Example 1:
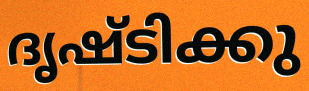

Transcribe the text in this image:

ദൃഷ്ടിക്കു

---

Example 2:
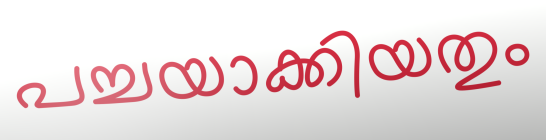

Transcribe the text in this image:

പച്ചയാക്കിയതും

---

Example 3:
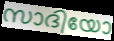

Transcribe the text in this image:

സാദിയോ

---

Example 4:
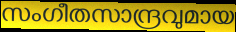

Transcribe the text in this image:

സംഗീതസാന്ദ്രവുമായ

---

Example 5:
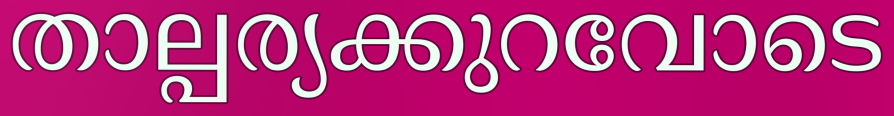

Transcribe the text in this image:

താല്പര്യക്കുറവോടെ